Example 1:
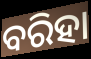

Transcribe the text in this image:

ବରିହା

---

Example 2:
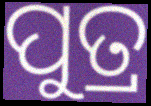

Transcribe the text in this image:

ପୁତ୍ର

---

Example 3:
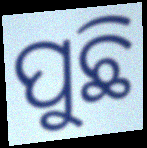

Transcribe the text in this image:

ପୁଛି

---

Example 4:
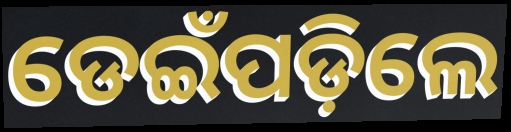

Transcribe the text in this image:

ଡେଇଁପଡ଼ିଲେ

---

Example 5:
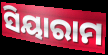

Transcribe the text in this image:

ସିୟାରାମ